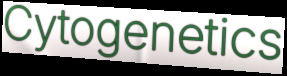
Cytogenetics